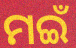
ମଇଁ